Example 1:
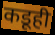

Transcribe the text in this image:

कडूही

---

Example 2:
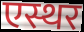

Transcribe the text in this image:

एस्थर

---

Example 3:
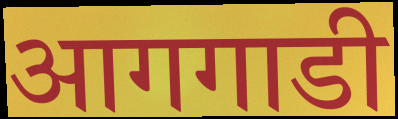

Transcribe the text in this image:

आगगाडी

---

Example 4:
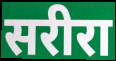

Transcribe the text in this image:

सरीरा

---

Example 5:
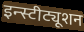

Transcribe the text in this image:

इन्स्टीट्यूशन